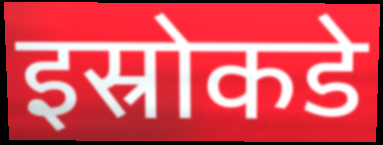
इस्रोकडे